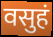
वसुहं